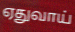
ஏதுவாய்